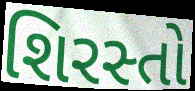
શિરસ્તો